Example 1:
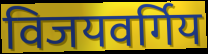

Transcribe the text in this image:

विजयवर्गिय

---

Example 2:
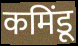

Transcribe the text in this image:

कमिंडू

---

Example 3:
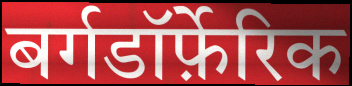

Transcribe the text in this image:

बर्गडॉर्फ़ेरिक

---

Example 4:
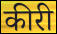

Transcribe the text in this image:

कीरी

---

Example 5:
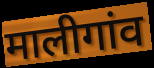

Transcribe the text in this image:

मालीगांव